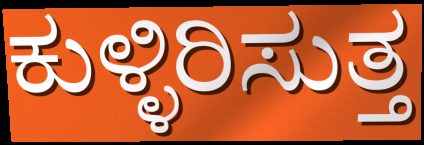
ಕುಳ್ಳಿರಿಸುತ್ತ